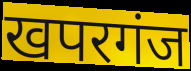
खपरगंज